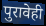
पुरावेही